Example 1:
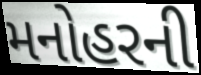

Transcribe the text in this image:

મનોહરની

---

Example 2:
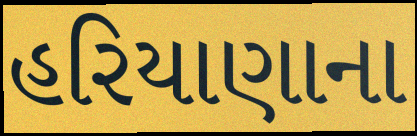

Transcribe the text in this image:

હરિયાણાના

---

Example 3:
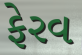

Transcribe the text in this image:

ફેરવ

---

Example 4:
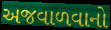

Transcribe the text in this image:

અજવાળવાનો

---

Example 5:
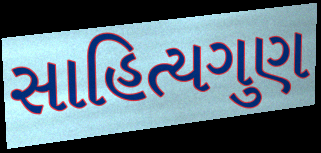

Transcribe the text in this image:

સાહિત્યગુણ